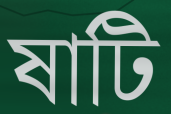
ষাটি